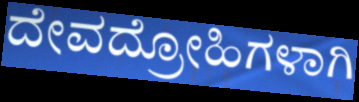
ದೇವದ್ರೋಹಿಗಳಾಗಿ